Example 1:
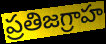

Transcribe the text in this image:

ప్రతిజగ్రాహ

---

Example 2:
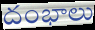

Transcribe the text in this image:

దంభాలు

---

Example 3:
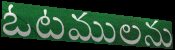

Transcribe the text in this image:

ఓటములను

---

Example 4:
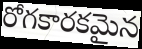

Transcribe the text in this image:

రోగకారకమైన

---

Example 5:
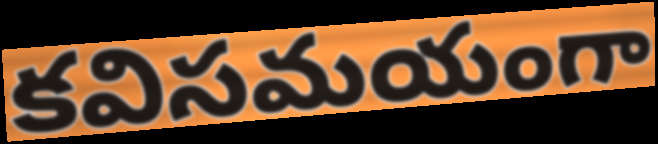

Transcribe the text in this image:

కవిసమయంగా